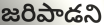
జరిపాడని